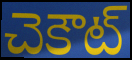
చెకౌట్